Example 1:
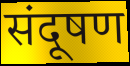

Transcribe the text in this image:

संदूषण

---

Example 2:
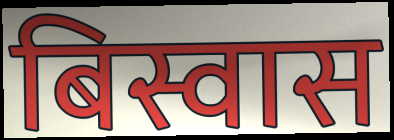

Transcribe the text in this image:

बिस्वास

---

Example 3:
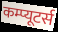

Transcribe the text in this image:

कम्प्यूटर्स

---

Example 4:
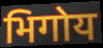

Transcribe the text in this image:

भिगोय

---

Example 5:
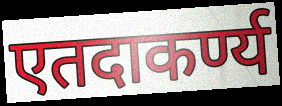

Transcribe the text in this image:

एतदाकर्ण्य